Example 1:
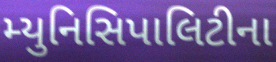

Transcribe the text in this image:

મ્યુનિસિપાલિટીના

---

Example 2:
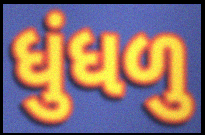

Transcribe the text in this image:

ધુંધળુ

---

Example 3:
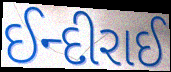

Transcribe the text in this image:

ઈન્દીરાઈ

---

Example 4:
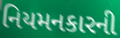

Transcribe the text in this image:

નિયમનકારની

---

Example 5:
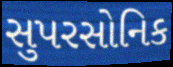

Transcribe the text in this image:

સુપરસોનિક